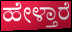
ಹೇಳ್ತಾರೆ